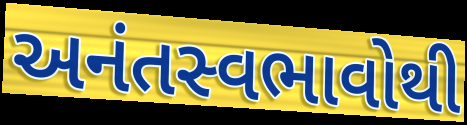
અનંતસ્વભાવોથી